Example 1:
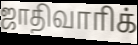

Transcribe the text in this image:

ஜாதிவாரிக்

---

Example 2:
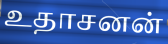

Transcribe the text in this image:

உதாசனன்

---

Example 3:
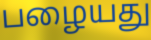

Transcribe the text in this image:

பழையது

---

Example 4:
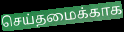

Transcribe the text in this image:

செய்தமைக்காக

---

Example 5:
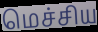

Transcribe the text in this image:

மெச்சிய